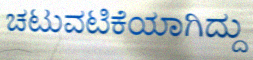
ಚಟುವಟಿಕೆಯಾಗಿದ್ದು